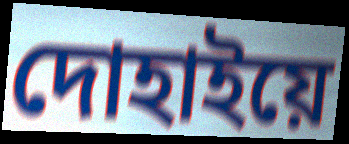
দোহাইয়ে